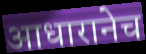
आधारानेच